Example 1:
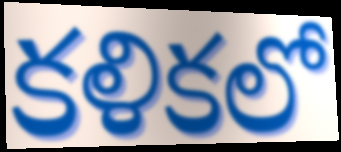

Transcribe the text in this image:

కళికలో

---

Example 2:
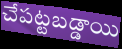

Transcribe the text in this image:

చేపట్టబడ్డాయి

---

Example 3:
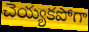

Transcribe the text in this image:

చెయ్యకపోగా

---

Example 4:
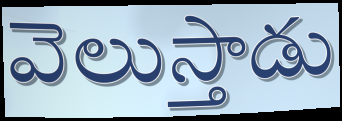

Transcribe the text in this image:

వెలుస్తాడు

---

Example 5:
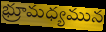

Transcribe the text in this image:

భ్రూమధ్యమున